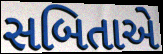
સબિતાએ